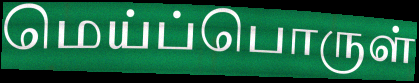
மெய்ப்பொருள்